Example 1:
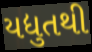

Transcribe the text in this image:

યદ્યુતથી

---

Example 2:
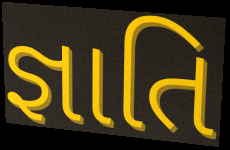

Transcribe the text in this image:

જ્ઞાતિ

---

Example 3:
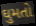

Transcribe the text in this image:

ઘુમતો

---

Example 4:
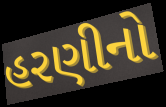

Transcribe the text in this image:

હરણીનો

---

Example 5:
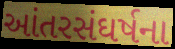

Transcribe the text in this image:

આંતરસંઘર્ષના